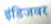
इंडिजवर